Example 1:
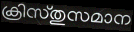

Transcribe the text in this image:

ക്രിസ്തുസമാന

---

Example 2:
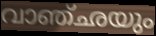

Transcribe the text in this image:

വാഞ്ഛയും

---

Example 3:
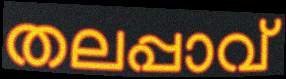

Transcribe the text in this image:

തലപ്പാവ്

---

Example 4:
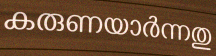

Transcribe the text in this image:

കരുണയാർന്നതു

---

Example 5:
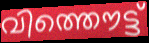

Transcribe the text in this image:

വിത്തൌട്ട്